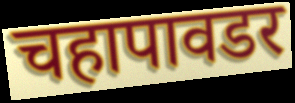
चहापावडर